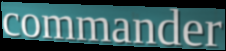
commander